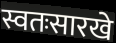
स्वतःसारखे